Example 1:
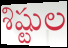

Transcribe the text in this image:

శిష్టుల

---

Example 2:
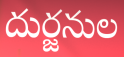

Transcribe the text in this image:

దుర్జనుల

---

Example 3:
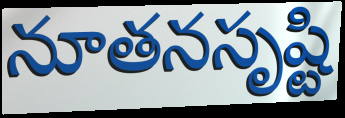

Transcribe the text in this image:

నూతనసృష్టి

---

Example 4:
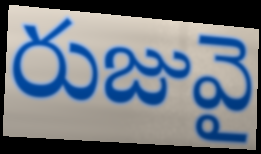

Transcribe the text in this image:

రుజువై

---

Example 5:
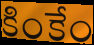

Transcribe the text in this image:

కింకేం